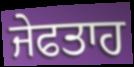
ਜੇਫਤਾਹ